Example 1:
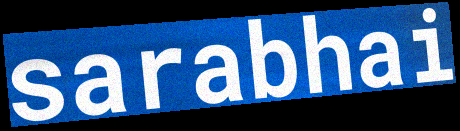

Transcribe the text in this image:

sarabhai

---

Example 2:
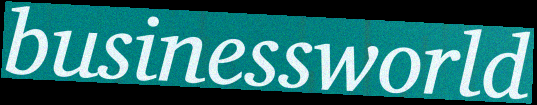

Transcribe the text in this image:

businessworld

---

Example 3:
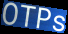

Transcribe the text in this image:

OTPs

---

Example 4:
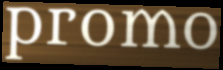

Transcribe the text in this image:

promo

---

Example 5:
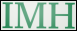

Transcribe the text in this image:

IMH